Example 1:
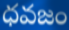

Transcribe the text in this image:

ధవజం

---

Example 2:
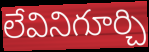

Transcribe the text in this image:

లేవినిగూర్చి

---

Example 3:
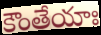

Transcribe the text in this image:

కౌంతేయాః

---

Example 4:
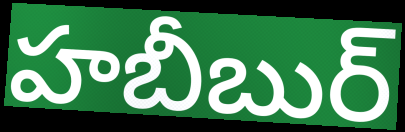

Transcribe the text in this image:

హబీబుర్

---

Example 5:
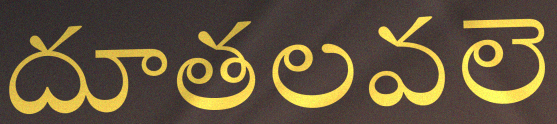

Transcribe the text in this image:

దూతలవలె